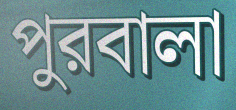
পুরবালা